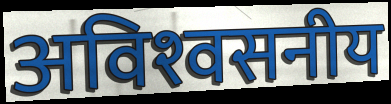
अविश्वसनीय